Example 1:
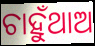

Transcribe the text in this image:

ଚାହୁଁଥାଅ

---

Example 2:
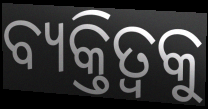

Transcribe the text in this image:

ବ୍ୟକ୍ତିତ୍ଵକୁ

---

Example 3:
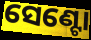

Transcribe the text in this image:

ସେଣ୍ଟୋ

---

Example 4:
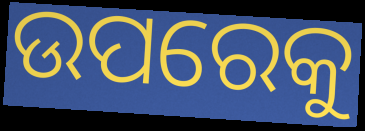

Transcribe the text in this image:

ଉପରେକୁ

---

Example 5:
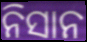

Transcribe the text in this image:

ନିସାନ